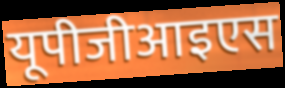
यूपीजीआइएस